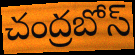
చంద్రబోస్